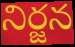
నిర్జన